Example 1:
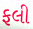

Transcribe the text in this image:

ફલી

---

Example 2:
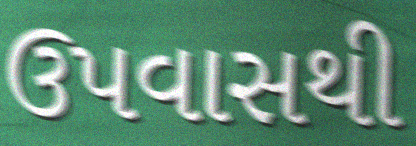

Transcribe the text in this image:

ઉપવાસથી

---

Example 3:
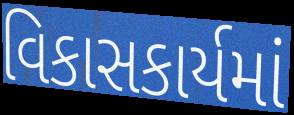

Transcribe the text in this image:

વિકાસકાર્યમાં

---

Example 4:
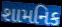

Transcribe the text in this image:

શામનિક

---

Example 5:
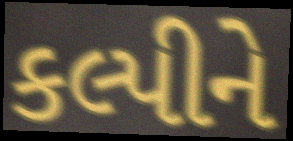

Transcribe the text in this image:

કલ્પીને